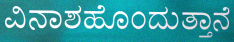
ವಿನಾಶಹೊಂದುತ್ತಾನೆ